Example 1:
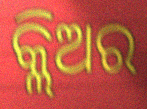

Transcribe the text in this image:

କ୍ଲିଅର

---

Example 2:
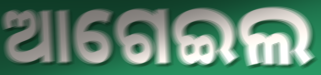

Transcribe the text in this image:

ଆଗେଇଲ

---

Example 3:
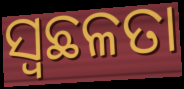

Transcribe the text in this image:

ସ୍ୱଛଳତା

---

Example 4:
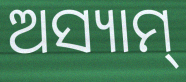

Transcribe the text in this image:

ଅସ୍ୟାମ୍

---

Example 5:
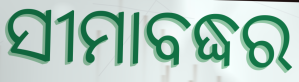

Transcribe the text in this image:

ସୀମାବଦ୍ଧର